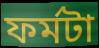
ফর্মটা